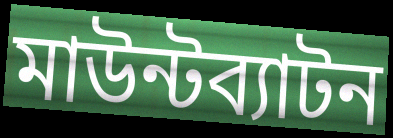
মাউন্টব্যাটন